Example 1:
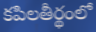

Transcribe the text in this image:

కపిలతీర్థంలో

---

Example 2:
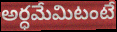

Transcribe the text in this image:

అర్ధమేమిటంటే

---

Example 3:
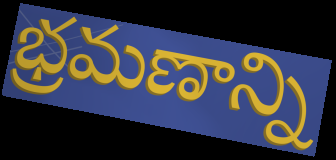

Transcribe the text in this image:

భ్రమణాన్ని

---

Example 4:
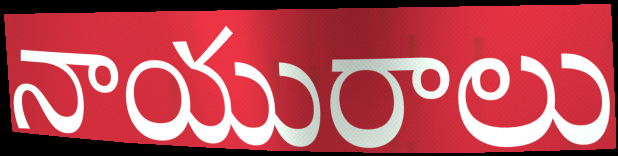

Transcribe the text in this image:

నాయురాలు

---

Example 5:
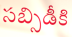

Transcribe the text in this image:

సబ్సిడీకి